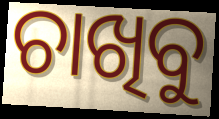
ଚାଖିବୁ